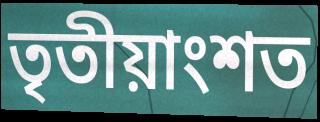
তৃতীয়াংশত